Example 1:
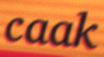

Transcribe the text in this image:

caak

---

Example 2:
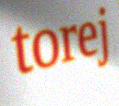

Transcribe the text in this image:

torej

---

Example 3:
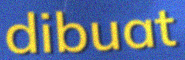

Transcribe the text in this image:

dibuat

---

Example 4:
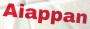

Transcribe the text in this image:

Aiappan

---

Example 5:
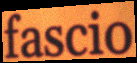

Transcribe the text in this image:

fascio